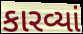
કારવ્યાં